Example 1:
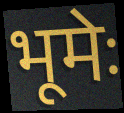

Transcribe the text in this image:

भूमेः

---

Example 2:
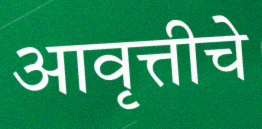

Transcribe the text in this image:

आवृत्तीचे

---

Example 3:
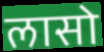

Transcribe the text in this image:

लासो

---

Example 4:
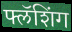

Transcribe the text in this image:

फ्लॅशिंग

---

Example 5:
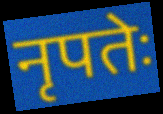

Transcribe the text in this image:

नृपतेः